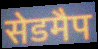
सेडमैप